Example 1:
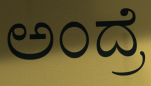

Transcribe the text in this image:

ಅಂದ್ರೆ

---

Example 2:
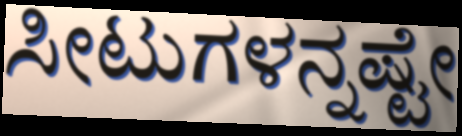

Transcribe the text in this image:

ಸೀಟುಗಳನ್ನಷ್ಟೇ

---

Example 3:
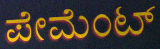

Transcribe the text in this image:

ಪೇಮೆಂಟ್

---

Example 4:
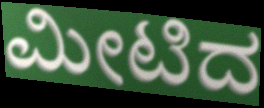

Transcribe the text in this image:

ಮೀಟಿದ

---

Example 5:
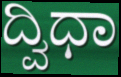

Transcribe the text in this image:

ದ್ವಿಧಾ